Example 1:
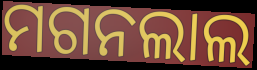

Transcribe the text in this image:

ମଗନଲାଲ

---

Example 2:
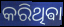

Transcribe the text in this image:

କରିଥିଵା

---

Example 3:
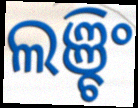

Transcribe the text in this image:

ଲଞ୍ଚିଂ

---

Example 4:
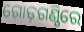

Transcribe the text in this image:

ଗୋଡ଼ଗଣ୍ଠିରେ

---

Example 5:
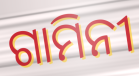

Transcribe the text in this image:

ଗାମିନୀ